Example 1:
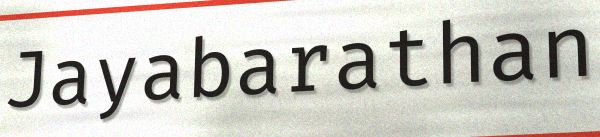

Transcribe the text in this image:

Jayabarathan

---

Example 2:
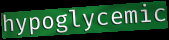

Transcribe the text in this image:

hypoglycemic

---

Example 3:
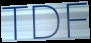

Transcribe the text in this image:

TDF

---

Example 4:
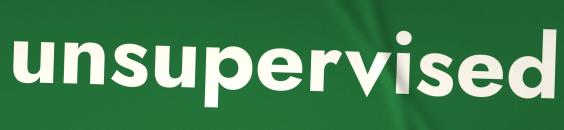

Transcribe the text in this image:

unsupervised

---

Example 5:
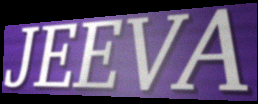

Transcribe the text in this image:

JEEVA